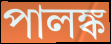
পালঙ্ক